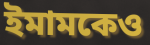
ইমামকেও